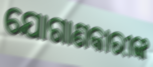
ଯୋଗାଣକାରୀଙ୍କ